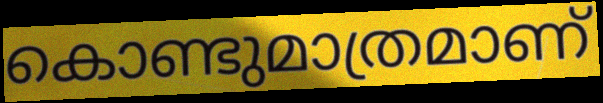
കൊണ്ടുമാത്രമാണ്